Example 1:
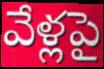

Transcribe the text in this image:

వేళ్లపై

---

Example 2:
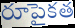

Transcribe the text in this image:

రూపైకత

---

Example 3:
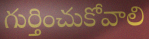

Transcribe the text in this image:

గుర్తించుకోవాలి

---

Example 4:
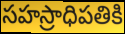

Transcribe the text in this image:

సహస్రాధిపతికి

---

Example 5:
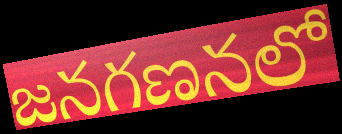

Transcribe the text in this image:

జనగణనలో